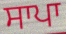
ਸਾਪਾ